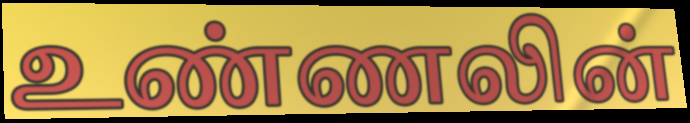
உண்ணலின்